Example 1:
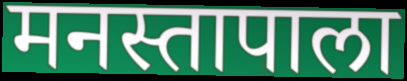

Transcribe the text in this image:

मनस्तापाला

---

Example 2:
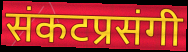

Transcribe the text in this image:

संकटप्रसंगी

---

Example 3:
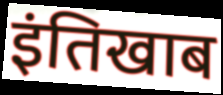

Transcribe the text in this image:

इंतिखाब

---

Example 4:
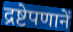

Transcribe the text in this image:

द्रष्टेपणानें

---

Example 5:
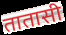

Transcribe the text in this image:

तातासी